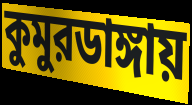
কুমুরডাঙ্গায়